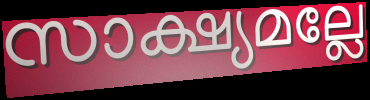
സാക്ഷ്യമല്ലേ